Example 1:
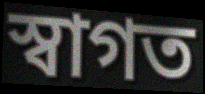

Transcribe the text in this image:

স্বাগত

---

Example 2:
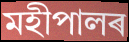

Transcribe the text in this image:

মহীপালৰ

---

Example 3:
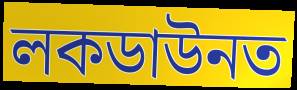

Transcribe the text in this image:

লকডাউনত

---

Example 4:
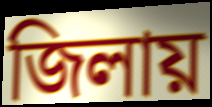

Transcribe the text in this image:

জিলায়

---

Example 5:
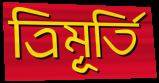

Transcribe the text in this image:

ত্ৰিমূৰ্তি